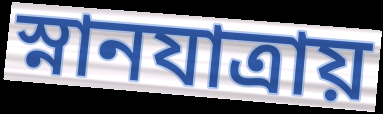
স্নানযাত্রায়